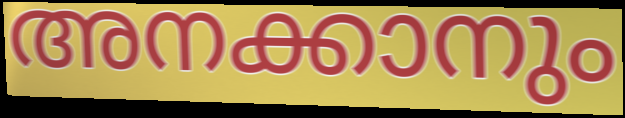
അനക്കാനും